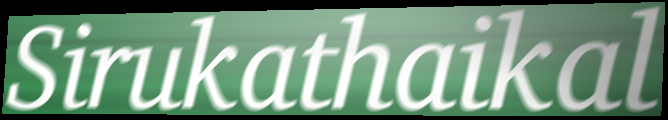
Sirukathaikal